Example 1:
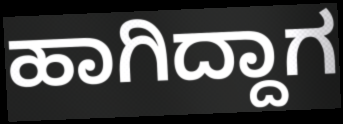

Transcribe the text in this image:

ಹಾಗಿದ್ದಾಗ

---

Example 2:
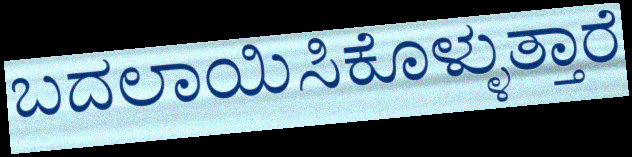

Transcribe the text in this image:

ಬದಲಾಯಿಸಿಕೊಳ್ಳುತ್ತಾರೆ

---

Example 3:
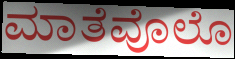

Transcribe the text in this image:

ಮಾತೆವೊಲೊ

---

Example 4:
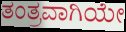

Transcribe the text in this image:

ತಂತ್ರವಾಗಿಯೇ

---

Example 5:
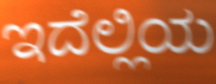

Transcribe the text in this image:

ಇದೆಲ್ಲಿಯ